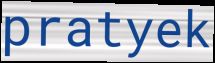
pratyek